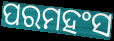
ପରମହଂସ